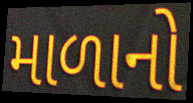
માળાનો